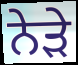
ਨੇਡ਼ੇ